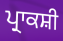
ਪ੍ਰਾਕਸ਼ੀ